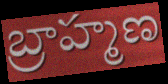
బ్రాహ్మణ